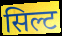
सिल्ट